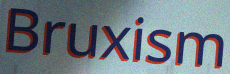
Bruxism